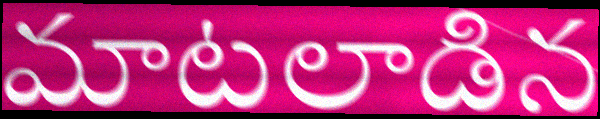
మాటలాడిన